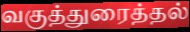
வகுத்துரைத்தல்